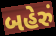
બહેરું